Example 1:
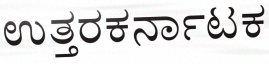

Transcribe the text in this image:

ಉತ್ತರಕರ್ನಾಟಕ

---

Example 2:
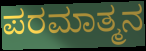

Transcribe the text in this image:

ಪರಮಾತ್ಮನ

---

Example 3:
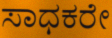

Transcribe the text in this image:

ಸಾಧಕರೇ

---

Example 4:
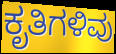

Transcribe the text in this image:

ಕೃತಿಗಳಿವು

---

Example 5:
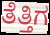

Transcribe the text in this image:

ತೆತ್ತಿಗ